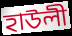
হাউলী